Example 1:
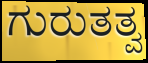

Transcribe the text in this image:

ಗುರುತತ್ವ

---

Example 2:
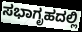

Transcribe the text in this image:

ಸಭಾಗೃಹದಲ್ಲಿ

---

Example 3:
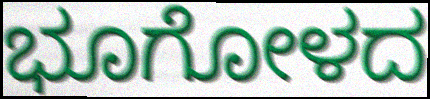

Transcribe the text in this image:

ಭೂಗೋಳದ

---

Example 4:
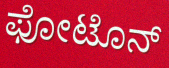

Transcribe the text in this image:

ಫೋಟೊನ್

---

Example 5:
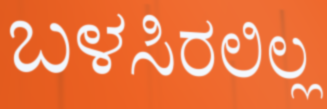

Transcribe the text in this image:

ಬಳಸಿರಲಿಲ್ಲ